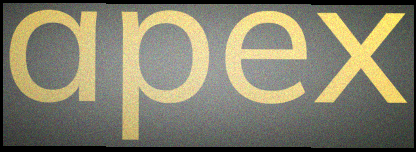
apex